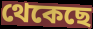
থেকেছে